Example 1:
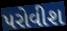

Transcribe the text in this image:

પરોવીશ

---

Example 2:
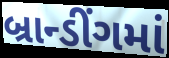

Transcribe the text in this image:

બ્રાન્ડીંગમાં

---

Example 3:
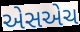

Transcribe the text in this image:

એસએચ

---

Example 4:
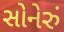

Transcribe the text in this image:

સોનેરું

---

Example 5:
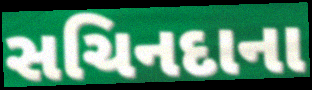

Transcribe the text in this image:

સચિનદાના